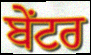
ਬੇਂਟਰ